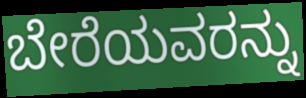
ಬೇರೆಯವರನ್ನು